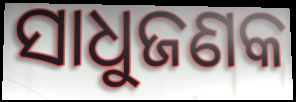
ସାଧୁଜଣକ